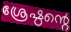
ശ്രേഷ്ഠന്റെ